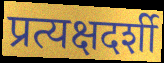
प्रत्यक्षदर्शी